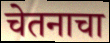
चेतनाचा